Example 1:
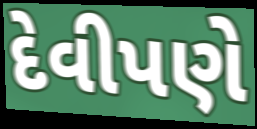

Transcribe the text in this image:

દેવીપણે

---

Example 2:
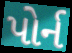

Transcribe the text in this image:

પોર્ન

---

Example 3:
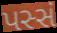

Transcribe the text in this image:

પસ્સં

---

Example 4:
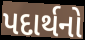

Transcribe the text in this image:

પદાર્થનો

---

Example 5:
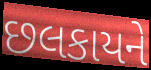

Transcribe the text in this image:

છલકાયને